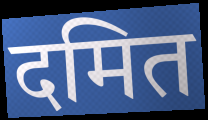
दमित